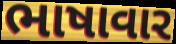
ભાષાવાર